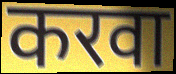
करवा